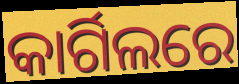
କାର୍ଗିଲରେ